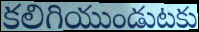
కలిగియుండుటకు